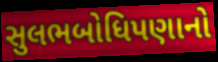
સુલભબોધિપણાનો